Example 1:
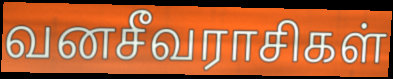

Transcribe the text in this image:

வனசீவராசிகள்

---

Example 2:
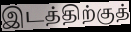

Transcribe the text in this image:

இடத்திற்குத்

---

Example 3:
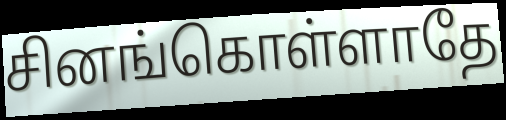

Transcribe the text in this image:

சினங்கொள்ளாதே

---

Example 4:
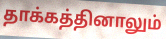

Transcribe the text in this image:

தாக்கத்தினாலும்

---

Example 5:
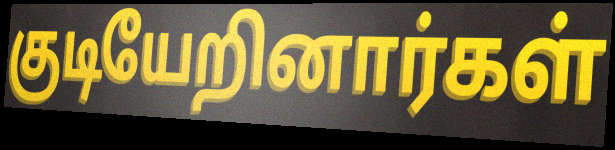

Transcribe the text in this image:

குடியேறினார்கள்